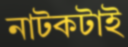
নাটকটাই